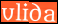
ulida